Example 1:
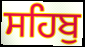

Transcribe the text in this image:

ਸਹਿਬੁ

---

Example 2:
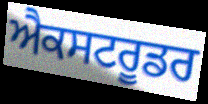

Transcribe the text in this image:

ਐਕਸਟਰੂਡਰ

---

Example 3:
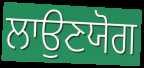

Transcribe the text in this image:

ਲਾਉਣਯੋਗ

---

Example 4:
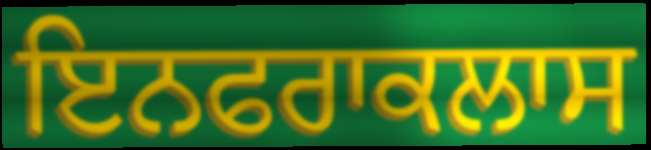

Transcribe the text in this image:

ਇਨਫਰਾਕਲਾਸ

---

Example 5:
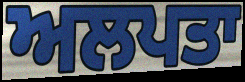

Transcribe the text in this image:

ਅਲਪਤਾ